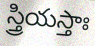
స్త్రియస్తాః